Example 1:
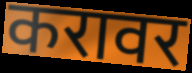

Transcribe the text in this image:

करावर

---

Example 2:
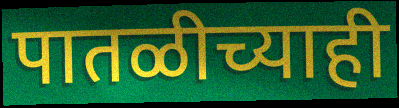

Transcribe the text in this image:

पातळीच्याही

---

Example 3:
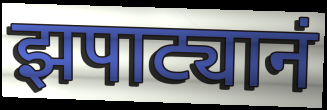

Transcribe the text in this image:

झपाट्यानं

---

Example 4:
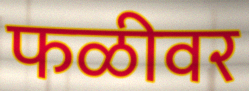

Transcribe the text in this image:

फळीवर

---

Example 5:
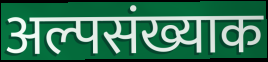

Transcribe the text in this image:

अल्पसंख्याक